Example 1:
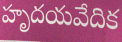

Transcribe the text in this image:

హృదయవేదిక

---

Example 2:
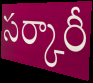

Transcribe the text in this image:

సర్కారీ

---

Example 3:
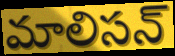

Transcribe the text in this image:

మాలిసన్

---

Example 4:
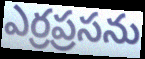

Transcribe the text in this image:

ఎర్రప్రసను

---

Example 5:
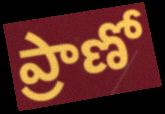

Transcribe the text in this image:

ప్రాణో